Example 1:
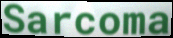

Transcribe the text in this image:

Sarcoma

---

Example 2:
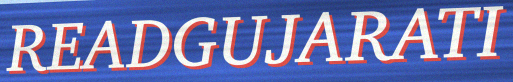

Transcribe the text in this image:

READGUJARATI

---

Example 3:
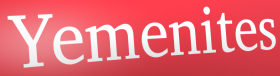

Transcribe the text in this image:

Yemenites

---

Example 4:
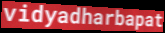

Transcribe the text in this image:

vidyadharbapat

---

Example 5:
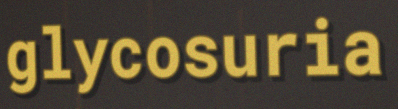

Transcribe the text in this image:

glycosuria